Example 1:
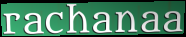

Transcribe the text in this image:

rachanaa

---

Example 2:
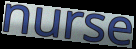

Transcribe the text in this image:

nurse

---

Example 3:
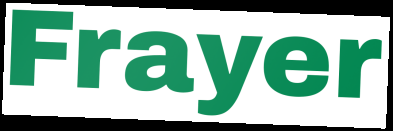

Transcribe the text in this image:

Frayer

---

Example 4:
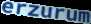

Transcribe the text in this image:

erzurum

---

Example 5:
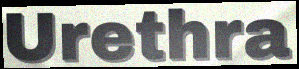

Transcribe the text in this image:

Urethra